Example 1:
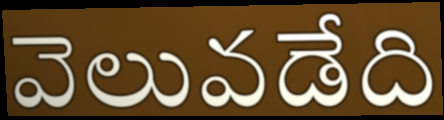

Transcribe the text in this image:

వెలువడేది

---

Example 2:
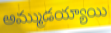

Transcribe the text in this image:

అమ్ముడయ్యాయి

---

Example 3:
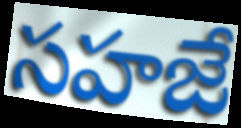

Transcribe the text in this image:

సహజే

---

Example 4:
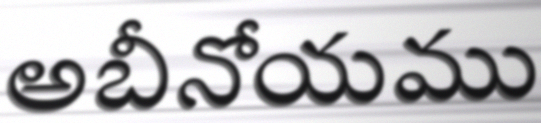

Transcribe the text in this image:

అబీనోయము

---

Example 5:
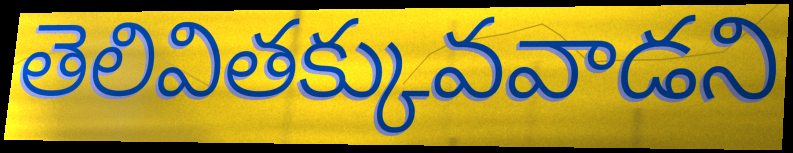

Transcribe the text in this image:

తెలివితక్కువవాడని